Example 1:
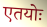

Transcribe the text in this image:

एतयोः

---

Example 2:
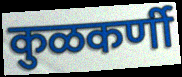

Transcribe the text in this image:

कुळकर्णी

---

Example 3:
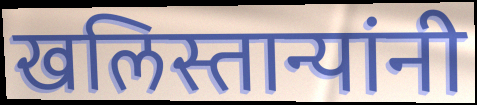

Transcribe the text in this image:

खलिस्तान्यांनी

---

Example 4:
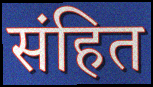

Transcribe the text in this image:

संहित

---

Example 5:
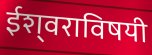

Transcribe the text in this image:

ईश्वराविषयी